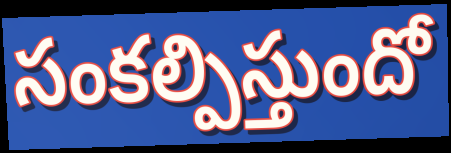
సంకల్పిస్తుందో